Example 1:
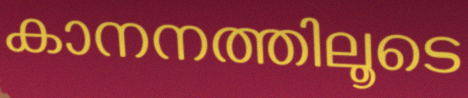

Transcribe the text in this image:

കാനനത്തിലൂടെ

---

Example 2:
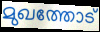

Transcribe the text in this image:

മുഖത്തോട്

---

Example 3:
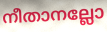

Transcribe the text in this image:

നീതാനല്ലോ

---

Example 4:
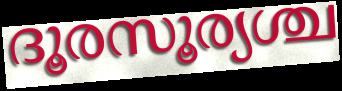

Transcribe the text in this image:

ദൂരസൂര്യശ്ച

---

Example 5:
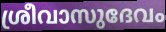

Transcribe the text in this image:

ശ്രീവാസുദേവം